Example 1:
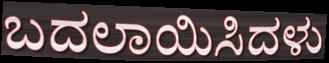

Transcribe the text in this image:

ಬದಲಾಯಿಸಿದಳು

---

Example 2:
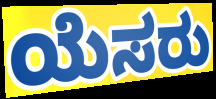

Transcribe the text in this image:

ಯೆಸರು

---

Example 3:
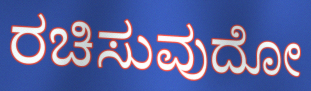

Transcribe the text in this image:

ರಚಿಸುವುದೋ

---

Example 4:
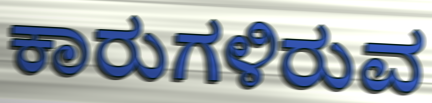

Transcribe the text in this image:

ಕಾರುಗಳಿರುವ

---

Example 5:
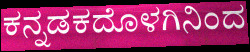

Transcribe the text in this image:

ಕನ್ನಡಕದೊಳಗಿನಿಂದ